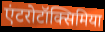
एंटरोटॉक्सिमिया